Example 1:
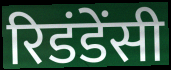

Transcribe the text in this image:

रिडंडेंसी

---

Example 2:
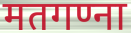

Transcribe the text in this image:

मतगण्ना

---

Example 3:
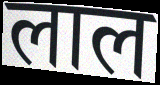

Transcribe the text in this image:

लाल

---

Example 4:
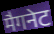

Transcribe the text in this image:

मैगनेट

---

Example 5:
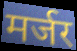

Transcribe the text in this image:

मर्जर